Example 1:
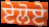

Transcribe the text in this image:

ਏਲੋਏ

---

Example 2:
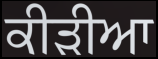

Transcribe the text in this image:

ਕੀੜੀਆ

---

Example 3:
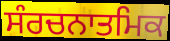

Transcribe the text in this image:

ਸੰਰਚਨਾਤਮਿਕ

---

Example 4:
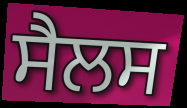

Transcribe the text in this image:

ਸੈਲਸ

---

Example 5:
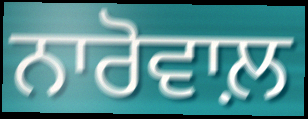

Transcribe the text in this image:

ਨਾਰੋਵਾਲ਼